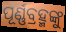
ପୂର୍ଣ୍ଣବ୍ରହ୍ମଙ୍କୁ